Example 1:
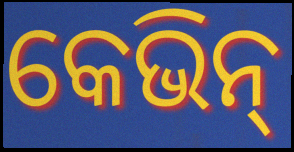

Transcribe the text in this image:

କେଭିନ୍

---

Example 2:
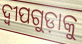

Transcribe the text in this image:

ଦ୍ୱୀପଗୁଡ଼ାକୁ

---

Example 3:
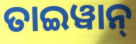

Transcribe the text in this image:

ତାଇୱାନ୍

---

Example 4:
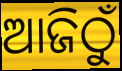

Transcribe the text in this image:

ଆଜିଠୁଁ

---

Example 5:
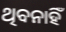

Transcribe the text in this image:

ଥିବନାହିଁ